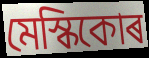
মেস্কিকোৰ